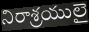
నిరాశ్రయులై